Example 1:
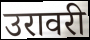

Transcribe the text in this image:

उरावरी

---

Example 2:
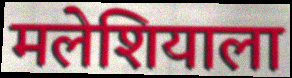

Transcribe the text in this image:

मलेशियाला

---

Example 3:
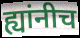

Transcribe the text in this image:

ह्यांनीच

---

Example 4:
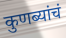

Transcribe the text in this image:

कुणब्यांचं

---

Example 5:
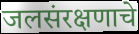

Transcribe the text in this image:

जलसंरक्षणाचे